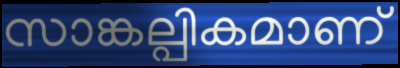
സാങ്കല്പികമാണ്